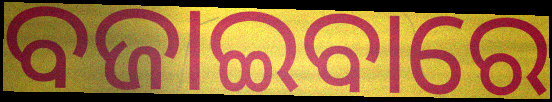
ବଜାଇବାରେ